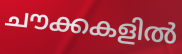
ചൗക്കകളിൽ